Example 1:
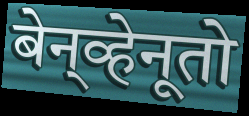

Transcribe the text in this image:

बेन्‌व्हेनूतो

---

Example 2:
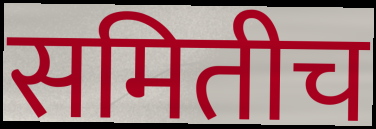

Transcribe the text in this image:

समितीच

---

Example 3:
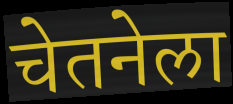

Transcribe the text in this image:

चेतनेला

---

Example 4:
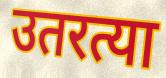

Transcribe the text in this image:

उतरत्या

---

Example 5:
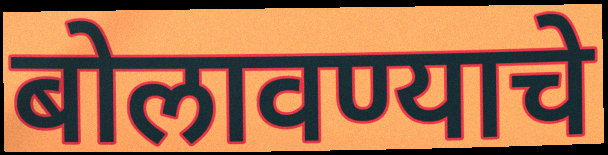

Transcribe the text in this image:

बोलावण्याचे